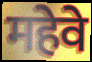
महेवे